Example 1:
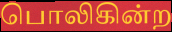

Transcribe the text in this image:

பொலிகின்ற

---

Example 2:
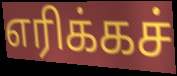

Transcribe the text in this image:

எரிக்கச்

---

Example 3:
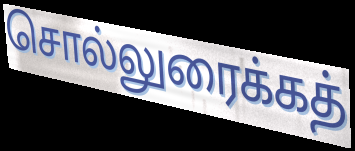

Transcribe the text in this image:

சொல்லுரைக்கத்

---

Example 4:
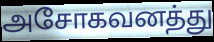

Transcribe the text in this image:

அசோகவனத்து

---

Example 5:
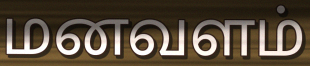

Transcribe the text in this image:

மனவளம்